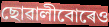
ছোৱালীবোৰেও